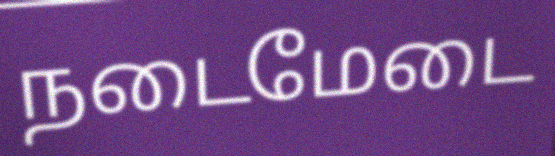
நடைமேடை